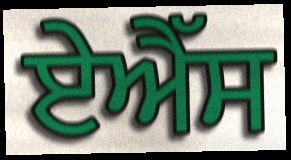
ਏਐੱਸ